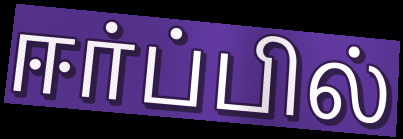
ஈர்ப்பில்